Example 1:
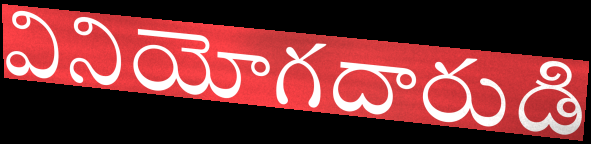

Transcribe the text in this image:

వినియోగదారుడి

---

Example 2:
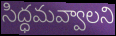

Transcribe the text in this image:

సిద్ధమవ్వాలని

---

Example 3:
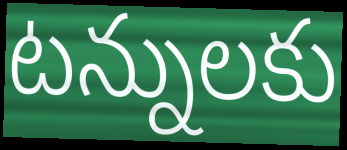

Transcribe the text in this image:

టన్నులకు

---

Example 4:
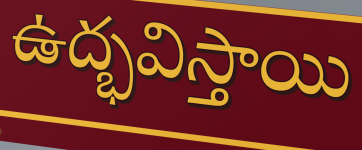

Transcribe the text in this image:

ఉద్భవిస్తాయి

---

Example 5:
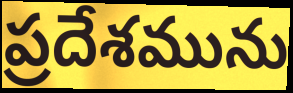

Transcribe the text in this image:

ప్రదేశమును